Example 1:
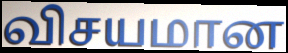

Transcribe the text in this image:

விசயமான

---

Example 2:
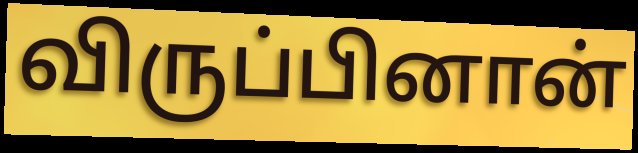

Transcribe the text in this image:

விருப்பினான்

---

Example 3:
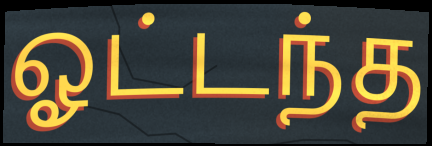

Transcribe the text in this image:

ஓட்டந்த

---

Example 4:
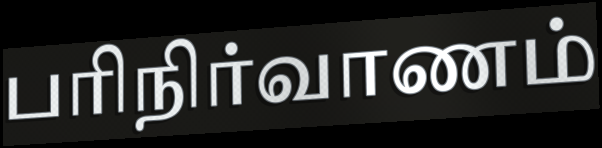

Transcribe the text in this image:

பரிநிர்வாணம்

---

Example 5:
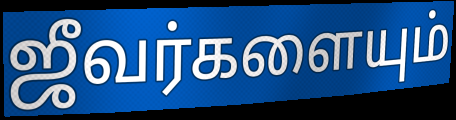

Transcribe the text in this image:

ஜீவர்களையும்